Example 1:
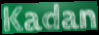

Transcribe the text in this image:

Kadan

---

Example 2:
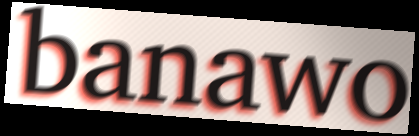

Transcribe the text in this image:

banawo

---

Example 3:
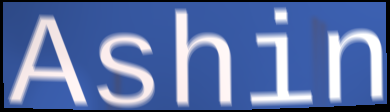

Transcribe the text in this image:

Ashin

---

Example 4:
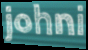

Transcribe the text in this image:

johni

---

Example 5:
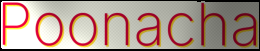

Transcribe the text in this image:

Poonacha